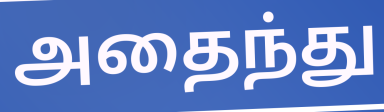
அதைந்து